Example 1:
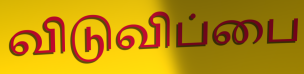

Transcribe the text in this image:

விடுவிப்பை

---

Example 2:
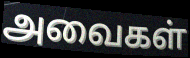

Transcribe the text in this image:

அவைகள்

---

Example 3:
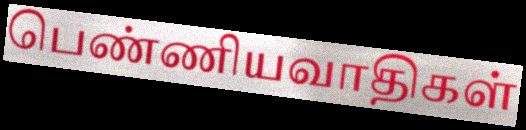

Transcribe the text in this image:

பெண்ணியவாதிகள்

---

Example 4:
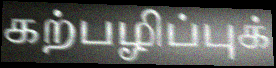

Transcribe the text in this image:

கற்பழிப்புக்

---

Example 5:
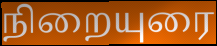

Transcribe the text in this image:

நிறையுரை